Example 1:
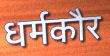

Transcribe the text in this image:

धर्मकौर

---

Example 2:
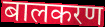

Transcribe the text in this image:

बालकरण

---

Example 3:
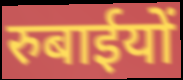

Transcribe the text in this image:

रुबाईयों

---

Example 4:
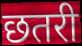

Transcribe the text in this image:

छतरी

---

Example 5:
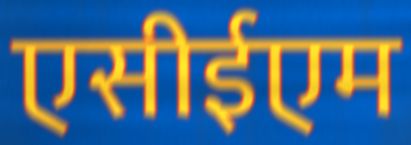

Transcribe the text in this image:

एसीईएम